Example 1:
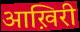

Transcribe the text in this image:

आख़िरी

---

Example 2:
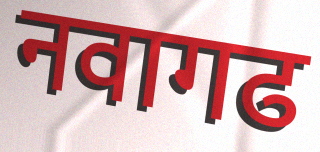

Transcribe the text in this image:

नवागढ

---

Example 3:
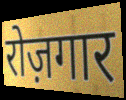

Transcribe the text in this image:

रोज़गार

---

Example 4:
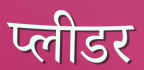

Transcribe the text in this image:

प्लीडर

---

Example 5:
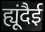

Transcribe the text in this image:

ह्यूंदैई